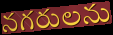
నగరులను